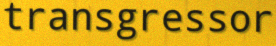
transgressor